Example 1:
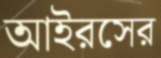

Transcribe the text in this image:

আইরসের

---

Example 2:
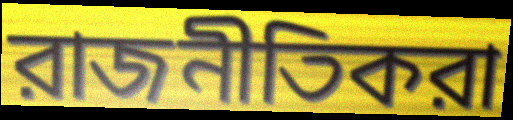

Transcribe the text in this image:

রাজনীতিকরা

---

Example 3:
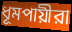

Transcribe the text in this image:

ধূমপায়ীরা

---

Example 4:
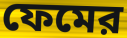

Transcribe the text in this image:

ফেমের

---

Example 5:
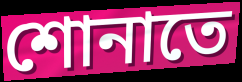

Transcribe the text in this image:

শোনাতে